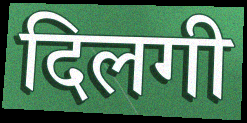
दिलगी